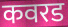
कवरड